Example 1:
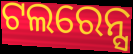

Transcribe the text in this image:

ଟଲରେନ୍ସ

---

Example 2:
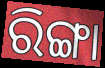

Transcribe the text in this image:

ରିଙ୍ଗା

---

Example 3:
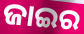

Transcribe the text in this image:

ଜାଇର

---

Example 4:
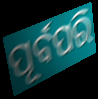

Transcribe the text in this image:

ପୂର୍ବପରି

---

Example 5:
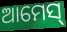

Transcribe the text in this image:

ଆମେସ୍